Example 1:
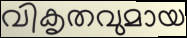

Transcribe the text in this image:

വികൃതവുമായ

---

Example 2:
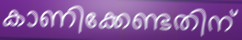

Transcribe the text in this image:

കാണിക്കേണ്ടതിന്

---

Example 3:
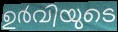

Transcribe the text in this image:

ഉർവിയുടെ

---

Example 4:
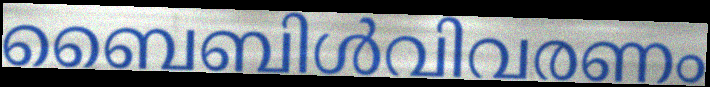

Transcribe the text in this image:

ബൈബിൾവിവരണം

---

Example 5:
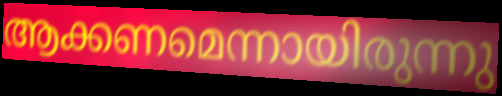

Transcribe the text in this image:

ആക്കണമെന്നായിരുന്നു